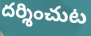
దర్శించుట